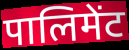
पालिमेंट